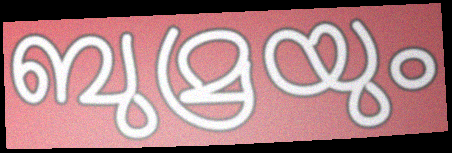
ബുമ്രയും